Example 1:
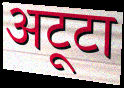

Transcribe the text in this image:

अटूटा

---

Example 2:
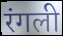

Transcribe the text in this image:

रंगली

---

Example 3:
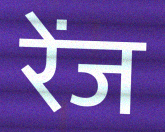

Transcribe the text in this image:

रेंज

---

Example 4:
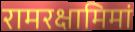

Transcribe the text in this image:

रामरक्षामिमां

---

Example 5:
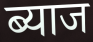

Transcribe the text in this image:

ब्याज